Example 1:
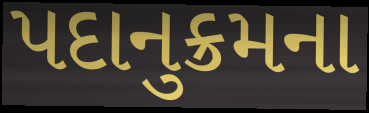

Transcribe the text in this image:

પદાનુક્રમના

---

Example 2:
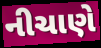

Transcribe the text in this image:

નીચાણે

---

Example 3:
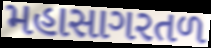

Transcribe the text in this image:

મહાસાગરતળ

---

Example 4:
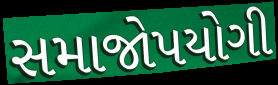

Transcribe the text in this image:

સમાજોપયોગી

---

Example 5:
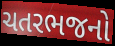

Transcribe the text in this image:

ચતરભજનો